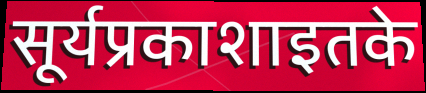
सूर्यप्रकाशाइतके